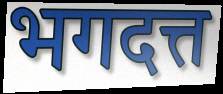
भगदत्त